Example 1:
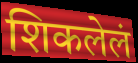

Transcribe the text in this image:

शिकलेलं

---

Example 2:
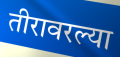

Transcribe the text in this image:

तीरावरल्या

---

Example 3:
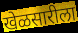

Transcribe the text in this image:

खेळसारीला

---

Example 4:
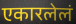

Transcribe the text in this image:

एकारलेलं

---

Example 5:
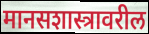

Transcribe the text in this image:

मानसशास्त्रावरील